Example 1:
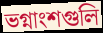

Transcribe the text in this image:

ভগ্নাংশগুলি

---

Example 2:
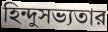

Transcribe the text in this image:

হিন্দুসভ্যতার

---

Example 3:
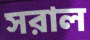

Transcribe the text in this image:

সরাল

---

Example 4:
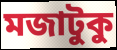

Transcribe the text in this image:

মজাটুকু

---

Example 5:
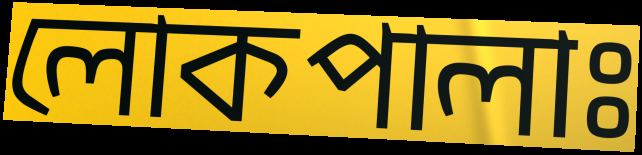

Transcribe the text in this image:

লোকপালাঃ